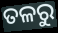
ତଳରୁ